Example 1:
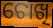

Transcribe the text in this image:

ଚୋଖି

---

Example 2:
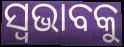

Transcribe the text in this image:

ସ୍ୱଭାବକୁ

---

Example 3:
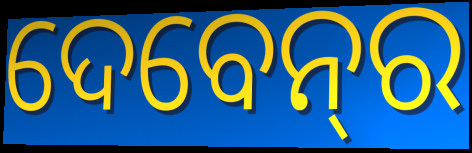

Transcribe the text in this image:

ଦେବେନ୍‌ର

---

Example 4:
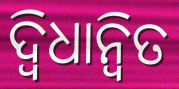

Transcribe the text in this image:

ଦ୍ଵିଧାନ୍ୱିତ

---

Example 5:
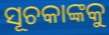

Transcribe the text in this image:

ସୂଚକାଙ୍କକୁ